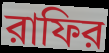
রাফির